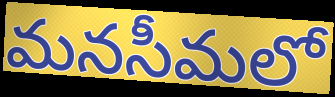
మనసీమలో